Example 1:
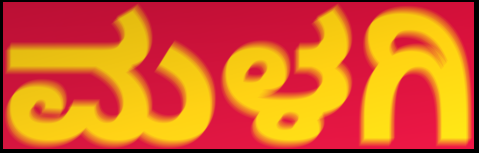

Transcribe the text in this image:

ಮಳಗಿ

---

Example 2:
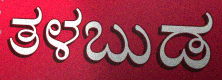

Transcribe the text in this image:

ತಳಬುಡ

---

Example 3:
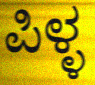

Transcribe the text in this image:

ಪಿಳ್ಳ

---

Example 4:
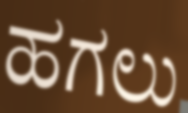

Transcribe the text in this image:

ಹಗಲು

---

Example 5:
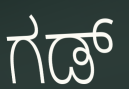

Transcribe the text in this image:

ಗಡ್